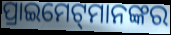
ପ୍ରାଇମେଟ୍‌ମାନଙ୍କର